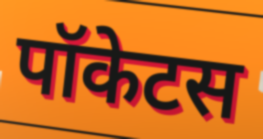
पॉकेटस